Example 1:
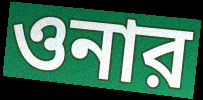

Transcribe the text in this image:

ওনার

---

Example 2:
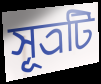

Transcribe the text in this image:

সূত্রটি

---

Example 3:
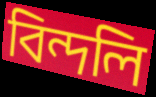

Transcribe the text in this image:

বিন্দলি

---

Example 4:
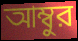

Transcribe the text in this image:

আম্বুর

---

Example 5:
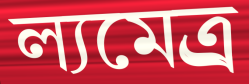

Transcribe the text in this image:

ল্যমেত্র্র